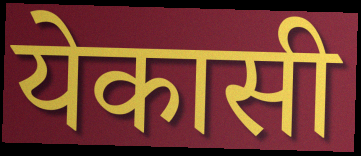
येकासी